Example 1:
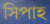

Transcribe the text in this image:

সিপাহ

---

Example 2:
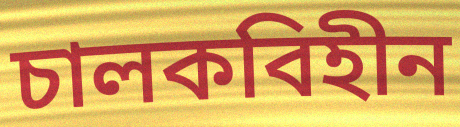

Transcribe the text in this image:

চালকবিহীন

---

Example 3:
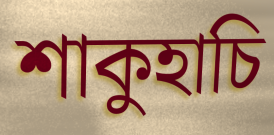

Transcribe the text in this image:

শাকুহাচি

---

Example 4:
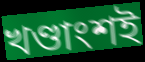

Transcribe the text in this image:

খণ্ডাংশই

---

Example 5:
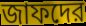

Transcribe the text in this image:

জাফদের